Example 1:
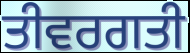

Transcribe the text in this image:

ਤੀਵਰਗਤੀ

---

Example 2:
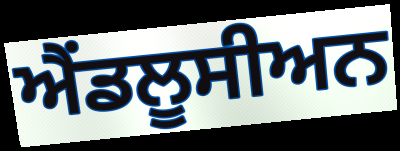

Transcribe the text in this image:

ਐਂਡਲੂਸੀਅਨ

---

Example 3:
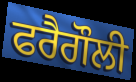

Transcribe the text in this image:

ਫਰੈਗੌਲੀ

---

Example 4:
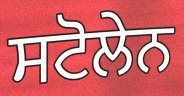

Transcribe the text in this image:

ਸਟੋਲੇਨ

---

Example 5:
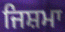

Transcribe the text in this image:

ਜਿਸ਼ਮਾ